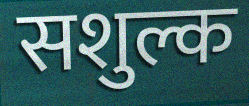
सशुल्क